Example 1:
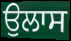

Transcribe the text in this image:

ਉਲਾਸ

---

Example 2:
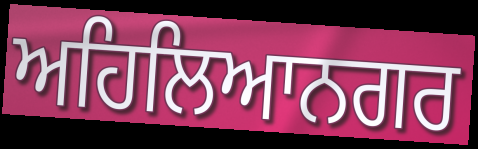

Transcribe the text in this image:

ਅਹਿਲਿਆਨਗਰ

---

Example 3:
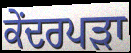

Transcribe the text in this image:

ਕੇਂਦਰਪੜਾ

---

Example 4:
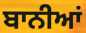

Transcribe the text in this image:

ਬਾਨੀਆਂ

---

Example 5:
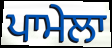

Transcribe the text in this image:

ਪਾਮੇਲਾ